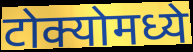
टोक्योमध्ये